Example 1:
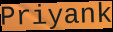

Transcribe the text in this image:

Priyank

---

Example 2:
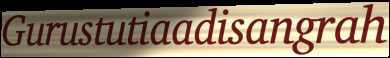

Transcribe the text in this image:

Gurustutiaadisangrah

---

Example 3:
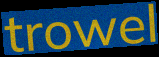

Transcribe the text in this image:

trowel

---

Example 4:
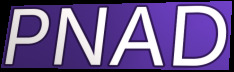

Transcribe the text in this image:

PNAD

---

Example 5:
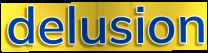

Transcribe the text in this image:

delusion